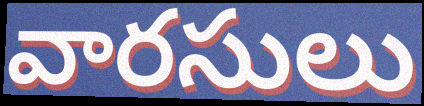
వారసులు